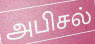
அபிசல்